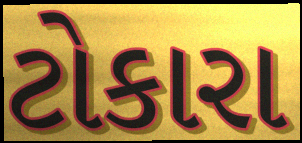
ટોકારા